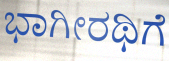
ಭಾಗೀರಥಿಗೆ